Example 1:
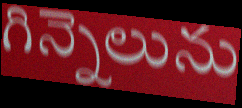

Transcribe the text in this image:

గిన్నెలును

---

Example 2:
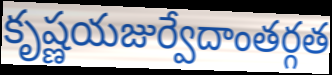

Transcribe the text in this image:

కృష్ణయజుర్వేదాంతర్గత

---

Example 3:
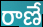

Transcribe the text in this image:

రాణే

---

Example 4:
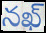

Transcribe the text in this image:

నఖ్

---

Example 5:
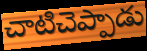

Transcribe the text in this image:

చాటిచెప్పాడు